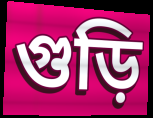
গুড়ি